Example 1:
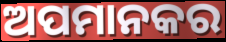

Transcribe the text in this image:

ଅପମାନକର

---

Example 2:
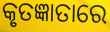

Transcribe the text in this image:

କୃତଜ୍ଞାତାରେ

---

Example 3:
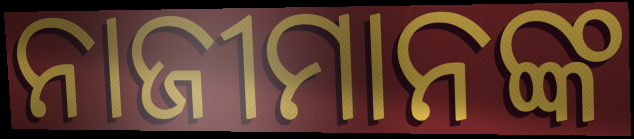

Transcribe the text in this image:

ନାଜୀମାନଙ୍କ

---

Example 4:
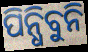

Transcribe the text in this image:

ପିନ୍ଧିବୁନି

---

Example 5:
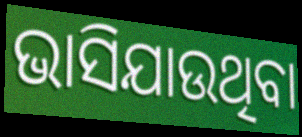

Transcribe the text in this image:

ଭାସିଯାଉଥିବା